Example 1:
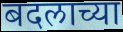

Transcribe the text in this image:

बदलाच्या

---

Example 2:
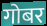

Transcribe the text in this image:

गोबर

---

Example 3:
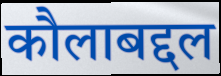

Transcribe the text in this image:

कौलाबद्दल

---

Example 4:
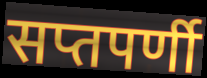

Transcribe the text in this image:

सप्तपर्णी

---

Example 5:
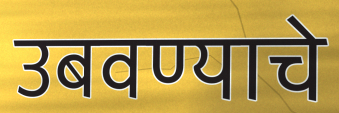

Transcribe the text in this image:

उबवण्याचे